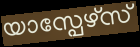
യാസ്പേഴ്സ്